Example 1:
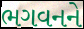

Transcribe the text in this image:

ભગવનને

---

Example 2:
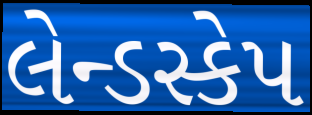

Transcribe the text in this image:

લેન્ડસ્કેપ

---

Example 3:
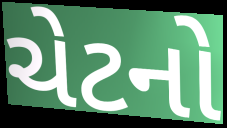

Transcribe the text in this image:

ચેટનો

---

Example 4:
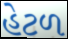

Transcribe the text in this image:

હેટળ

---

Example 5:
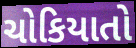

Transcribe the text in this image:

ચોકિયાતો